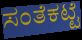
ಸಂತೆಕಟ್ಟೆ